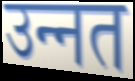
उन्‍नत